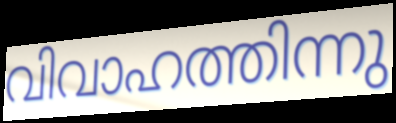
വിവാഹത്തിന്നു